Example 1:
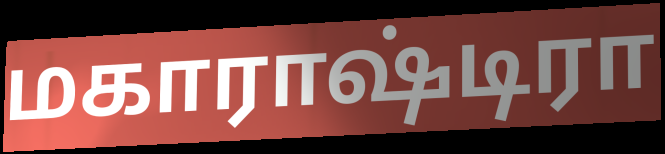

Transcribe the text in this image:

மகாராஷ்டிரா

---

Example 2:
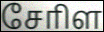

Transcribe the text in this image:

சேரிள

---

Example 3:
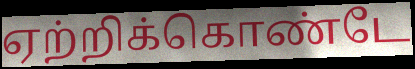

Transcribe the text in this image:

ஏற்றிக்கொண்டே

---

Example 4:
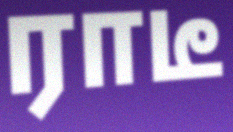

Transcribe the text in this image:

ராடீ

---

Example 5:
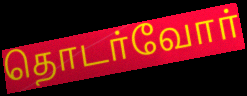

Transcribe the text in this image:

தொடர்வோர்